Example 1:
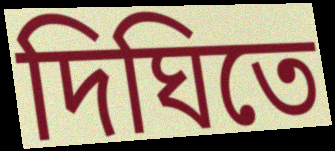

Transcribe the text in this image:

দিঘিতে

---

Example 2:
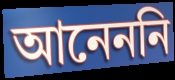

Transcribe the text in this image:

আনেননি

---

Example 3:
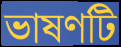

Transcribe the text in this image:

ভাষণটি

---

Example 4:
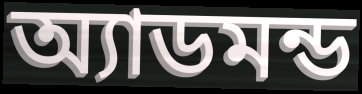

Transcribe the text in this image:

অ্যাডমন্ড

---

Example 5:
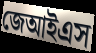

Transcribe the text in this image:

জেআইএস